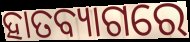
ହାତବ୍ୟାଗରେ